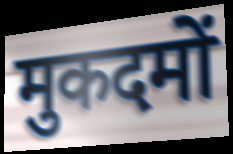
मुकदमों